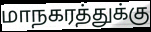
மாநகரத்துக்கு